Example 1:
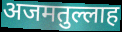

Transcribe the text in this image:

अजमतुल्लाह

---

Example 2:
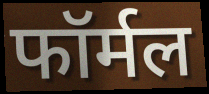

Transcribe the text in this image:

फॉर्मल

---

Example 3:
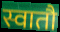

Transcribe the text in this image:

स्वातौ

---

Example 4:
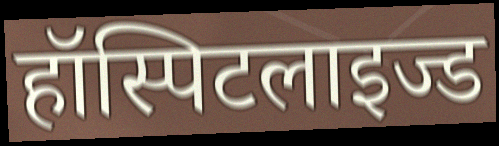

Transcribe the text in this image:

हॉस्पिटलाइज्ड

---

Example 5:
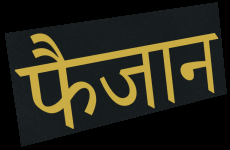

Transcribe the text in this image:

फैजान